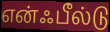
என்ஃபீல்டு